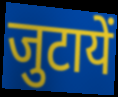
जुटायें